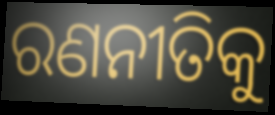
ରଣନୀତିକୁ